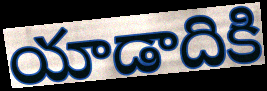
యాడాదికి